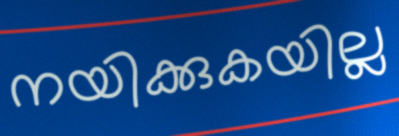
നയിക്കുകയില്ല